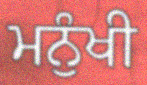
ਮਨੁੰਖੀ